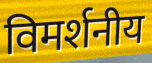
विमर्शनीय